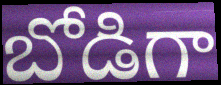
బోడిగా